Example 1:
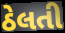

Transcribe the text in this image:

ઠેલતી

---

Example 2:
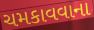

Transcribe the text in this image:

ચમકાવવાના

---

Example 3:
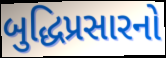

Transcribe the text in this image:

બુદ્ધિપ્રસારનો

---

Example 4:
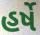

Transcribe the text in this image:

હર્ષે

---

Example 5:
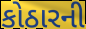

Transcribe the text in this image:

કોઠારની